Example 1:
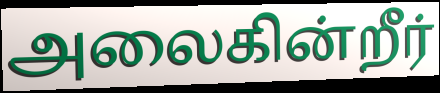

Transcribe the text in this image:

அலைகின்றீர்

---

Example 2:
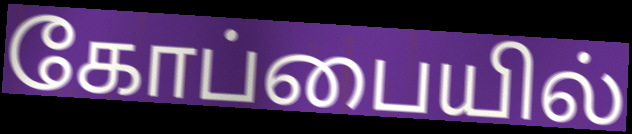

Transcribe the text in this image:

கோப்பையில்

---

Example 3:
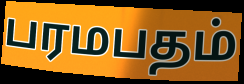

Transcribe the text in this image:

பரமபதம்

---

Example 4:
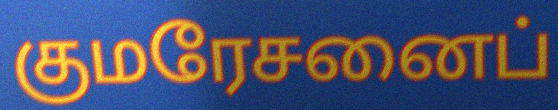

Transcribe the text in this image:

குமரேசனைப்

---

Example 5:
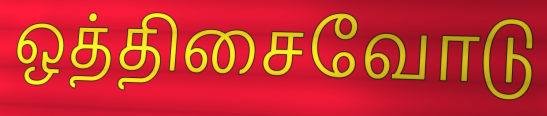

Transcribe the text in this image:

ஒத்திசைவோடு